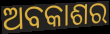
ଅବକାଶର